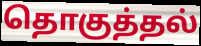
தொகுத்தல்